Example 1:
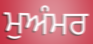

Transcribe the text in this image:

ਮੁਅੰਮਰ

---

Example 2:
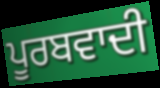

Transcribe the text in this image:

ਪੂਰਬਵਾਦੀ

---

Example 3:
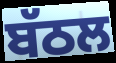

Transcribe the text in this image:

ਬੱਠਲ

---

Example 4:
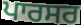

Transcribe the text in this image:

ਪਾਰਸਰ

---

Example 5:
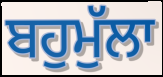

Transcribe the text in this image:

ਬਹੁਮੁੱਲਾ